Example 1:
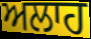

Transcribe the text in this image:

ਅਲਾਹ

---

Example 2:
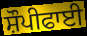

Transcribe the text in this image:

ਸ਼ੌਪੀਫਾਈ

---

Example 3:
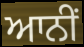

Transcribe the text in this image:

ਆਨੀਂ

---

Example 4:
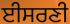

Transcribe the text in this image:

ਈਸਰਣੀ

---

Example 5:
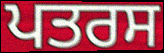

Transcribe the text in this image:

ਪਤਰਸ